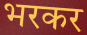
भरकर